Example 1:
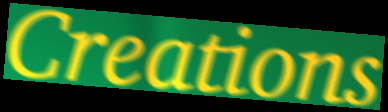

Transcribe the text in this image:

Creations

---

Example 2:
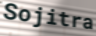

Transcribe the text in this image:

Sojitra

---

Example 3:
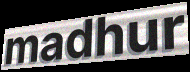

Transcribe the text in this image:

madhur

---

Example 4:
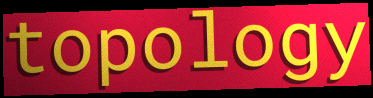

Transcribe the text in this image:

topology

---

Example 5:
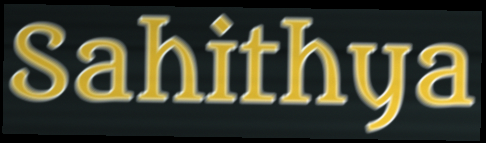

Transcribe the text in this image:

Sahithya